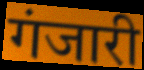
गंजारी